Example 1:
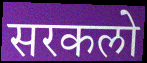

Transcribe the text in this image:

सरकलो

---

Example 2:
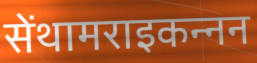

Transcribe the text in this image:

सेंथामराइकन्नन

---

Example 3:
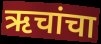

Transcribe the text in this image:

ऋचांचा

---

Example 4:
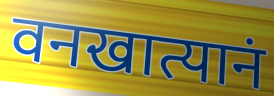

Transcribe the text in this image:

वनखात्यानं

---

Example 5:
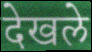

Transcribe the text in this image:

देखले